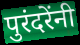
पुरंदरेंनी